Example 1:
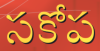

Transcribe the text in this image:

సకోప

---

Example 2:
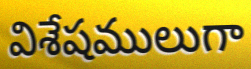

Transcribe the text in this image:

విశేషములుగా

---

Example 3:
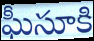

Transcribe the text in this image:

ఘీసూకి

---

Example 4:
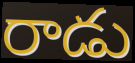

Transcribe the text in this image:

రాడు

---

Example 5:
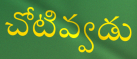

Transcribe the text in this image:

చోటివ్వడు